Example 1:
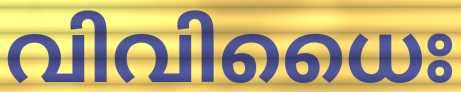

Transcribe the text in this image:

വിവിധൈഃ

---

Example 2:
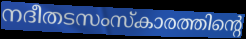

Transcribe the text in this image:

നദീതടസംസ്കാരത്തിന്റെ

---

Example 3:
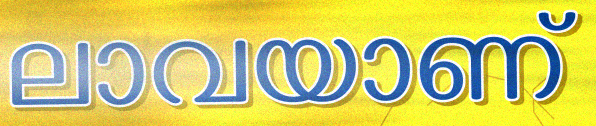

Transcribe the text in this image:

ലാവയാണ്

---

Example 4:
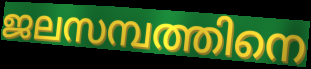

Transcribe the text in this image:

ജലസമ്പത്തിനെ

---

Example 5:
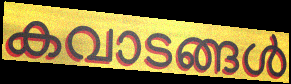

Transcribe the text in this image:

കവാടങ്ങൾ